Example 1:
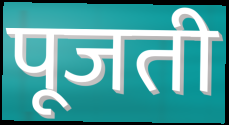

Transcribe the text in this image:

पूजती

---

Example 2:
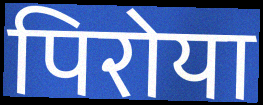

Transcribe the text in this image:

पिरोया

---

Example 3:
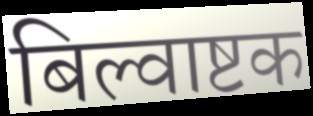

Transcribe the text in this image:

बिल्वाष्टक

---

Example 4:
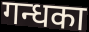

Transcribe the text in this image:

गन्धका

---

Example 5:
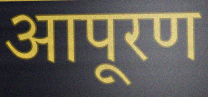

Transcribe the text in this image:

आपूरण